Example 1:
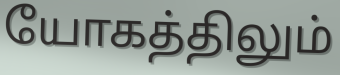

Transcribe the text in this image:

யோகத்திலும்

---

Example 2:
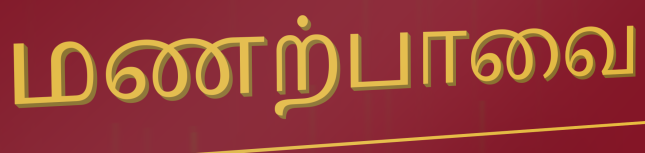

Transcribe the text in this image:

மணற்பாவை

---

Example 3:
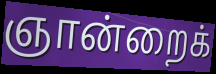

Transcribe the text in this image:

ஞான்றைக்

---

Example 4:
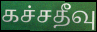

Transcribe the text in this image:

கச்சதீவு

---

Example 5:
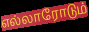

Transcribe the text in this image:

எல்லாரோடும்